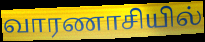
வாரணாசியில்